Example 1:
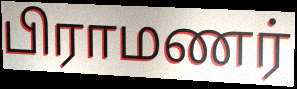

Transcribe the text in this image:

பிராமணர்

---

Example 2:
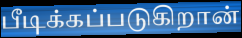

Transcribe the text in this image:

பீடிக்கப்படுகிறான்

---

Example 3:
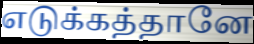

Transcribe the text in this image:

எடுக்கத்தானே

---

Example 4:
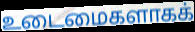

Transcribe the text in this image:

உடைமைகளாகக்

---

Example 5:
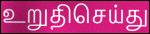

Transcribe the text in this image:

உறுதிசெய்து